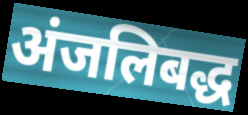
अंजलिबद्ध